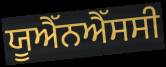
ਯੂਐੱਨਐੱਸਸੀ